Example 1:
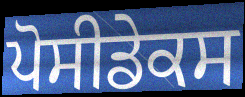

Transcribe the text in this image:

ਪੋਸੀਡੇਕਸ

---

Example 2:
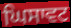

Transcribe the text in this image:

ਘਿਸਾਵਟ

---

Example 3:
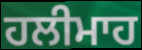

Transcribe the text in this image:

ਹਲੀਮਾਹ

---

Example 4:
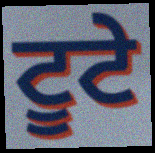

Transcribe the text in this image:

ਟੂਟੇ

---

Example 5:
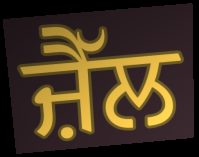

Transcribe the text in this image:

ਜ਼ੈੱਲ